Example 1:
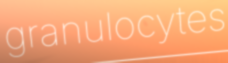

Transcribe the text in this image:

granulocytes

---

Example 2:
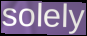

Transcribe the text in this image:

solely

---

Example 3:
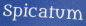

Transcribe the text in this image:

Spicatum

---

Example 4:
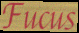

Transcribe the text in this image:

Fucus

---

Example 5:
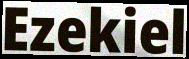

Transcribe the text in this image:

Ezekiel